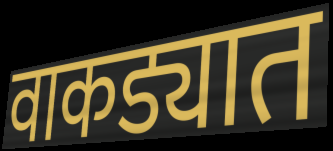
वाकड्यात